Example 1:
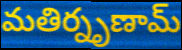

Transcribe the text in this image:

మతిర్నృణామ్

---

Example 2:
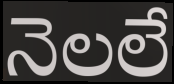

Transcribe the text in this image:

నెలలే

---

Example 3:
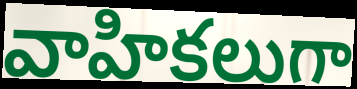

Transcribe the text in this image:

వాహికలుగా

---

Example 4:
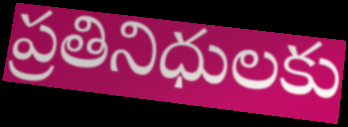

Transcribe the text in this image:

ప్రతినిధులకు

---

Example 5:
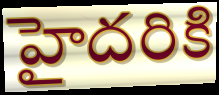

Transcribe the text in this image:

హైదరికి